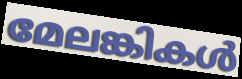
മേലങ്കികൾ